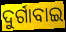
ଦୁର୍ଗାବାଇ